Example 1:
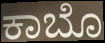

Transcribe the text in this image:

ಕಾಬೊ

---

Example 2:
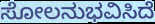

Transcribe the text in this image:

ಸೋಲನುಭವಿಸಿದೆ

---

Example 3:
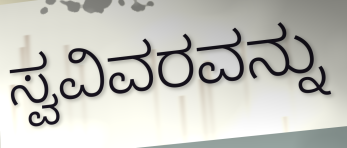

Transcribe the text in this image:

ಸ್ವವಿವರವನ್ನು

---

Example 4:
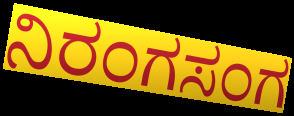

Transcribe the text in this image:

ನಿರಂಗಸಂಗ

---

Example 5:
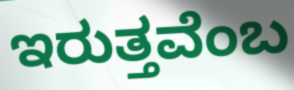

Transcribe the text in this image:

ಇರುತ್ತವೆಂಬ